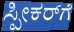
ಸ್ಪೀಕರ್‌ಗೆ